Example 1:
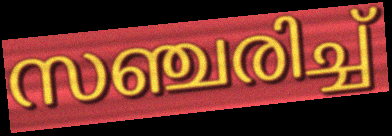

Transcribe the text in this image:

സഞ്ചരിച്ച്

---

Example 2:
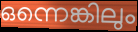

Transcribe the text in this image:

ഒന്നെങ്കിലും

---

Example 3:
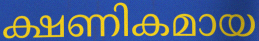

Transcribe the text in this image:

ക്ഷണികമായ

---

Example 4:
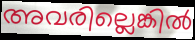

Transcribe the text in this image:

അവരില്ലെങ്കിൽ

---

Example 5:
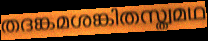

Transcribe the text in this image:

തദങ്കമശങ്കിതസ്ത്വമഥ